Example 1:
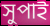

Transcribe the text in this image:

সুপাই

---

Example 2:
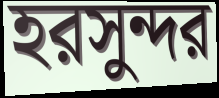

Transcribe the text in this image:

হরসুন্দর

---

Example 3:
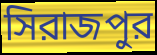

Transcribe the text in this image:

সিরাজপুর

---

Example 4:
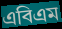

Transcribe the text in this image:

এবিএম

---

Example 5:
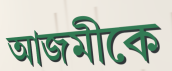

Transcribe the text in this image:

আজমীকে